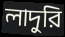
লাদুরি